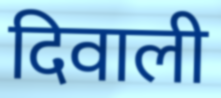
दिवाली